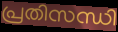
പ്രതിസന്ധി